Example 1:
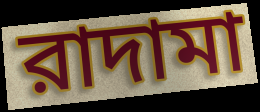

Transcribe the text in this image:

রাদামা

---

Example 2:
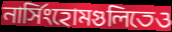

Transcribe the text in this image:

নার্সিংহোমগুলিতেও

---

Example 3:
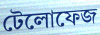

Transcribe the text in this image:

টেলোফেজ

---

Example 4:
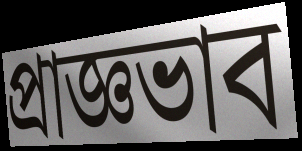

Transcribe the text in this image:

প্রাজ্ঞভাব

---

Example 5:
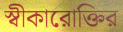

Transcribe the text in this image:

স্বীকারোক্তির